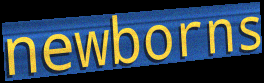
newborns